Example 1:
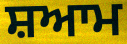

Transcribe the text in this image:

ਸ਼ਆਮ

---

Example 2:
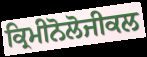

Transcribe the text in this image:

ਕ੍ਰਿਮੀਨੋਲੋਜੀਕਲ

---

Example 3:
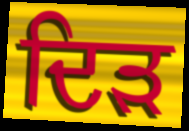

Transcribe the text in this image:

ਦਿੜ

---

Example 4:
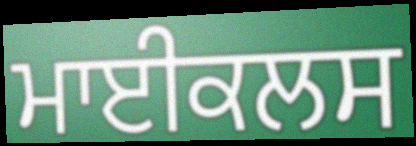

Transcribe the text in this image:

ਮਾਈਕਲਸ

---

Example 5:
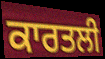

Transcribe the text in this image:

ਕਾਰਤਲੀ